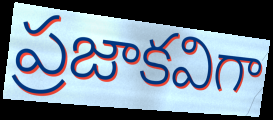
ప్రజాకవిగా